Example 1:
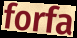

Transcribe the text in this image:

forfa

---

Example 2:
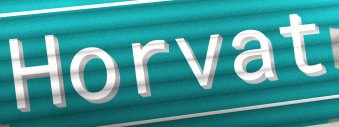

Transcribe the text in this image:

Horvat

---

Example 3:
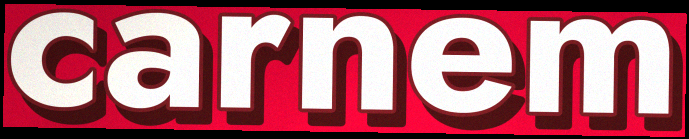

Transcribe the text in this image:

carnem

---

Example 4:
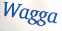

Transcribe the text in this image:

Wagga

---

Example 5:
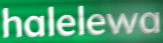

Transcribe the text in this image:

halelewa